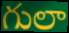
గులా